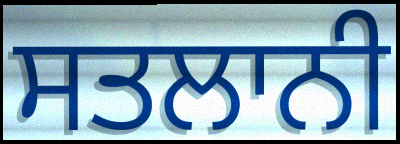
ਸਤਲਾਨੀ